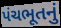
પંચભૂતનું